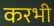
करभी